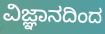
ವಿಜ್ಞಾನದಿಂದ